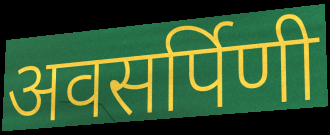
अवसर्पिणी